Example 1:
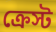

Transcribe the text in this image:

ক্রেস্ট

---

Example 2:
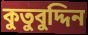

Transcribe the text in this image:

কুতুবুদ্দিন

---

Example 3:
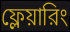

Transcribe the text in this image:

ফ্লেয়ারিং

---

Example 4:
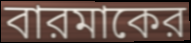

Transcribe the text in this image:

বারমাকের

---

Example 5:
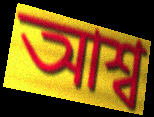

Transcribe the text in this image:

আশ্ব